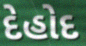
દેહોદ